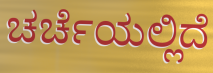
ಚರ್ಚೆಯಲ್ಲಿದೆ